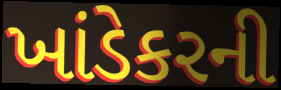
ખાંડેકરની